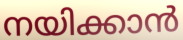
നയിക്കാൻ